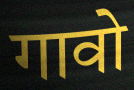
गावो